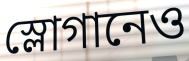
স্লোগানেও